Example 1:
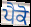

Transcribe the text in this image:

ਪੈਕੋ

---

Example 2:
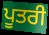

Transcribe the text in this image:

ਪੂਤਰੀ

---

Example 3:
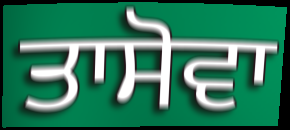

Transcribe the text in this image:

ਤਾਸੋਵਾ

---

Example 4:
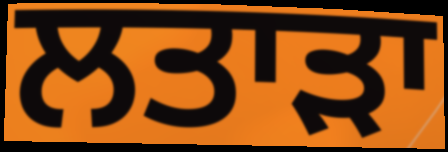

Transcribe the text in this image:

ਲਤਾੜਾ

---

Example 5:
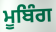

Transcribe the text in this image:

ਮੂਬਿੰਗ